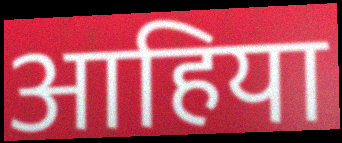
आहिया